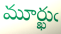
మూర్ఖుఁ